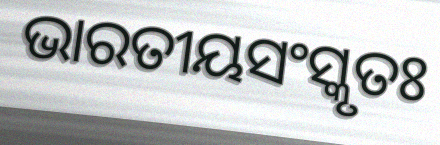
ଭାରତୀୟସଂସ୍କୃତଃ